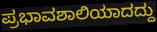
ಪ್ರಭಾವಶಾಲಿಯಾದದ್ದು